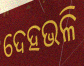
ଦେହଭଳି